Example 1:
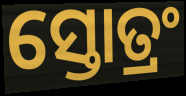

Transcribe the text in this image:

ସ୍ତୋତ୍ରଂ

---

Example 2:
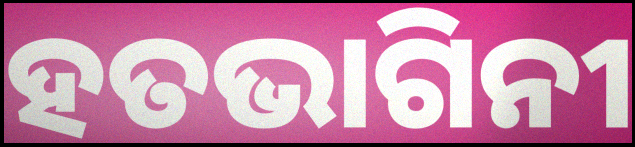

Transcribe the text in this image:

ହତଭାଗିନୀ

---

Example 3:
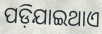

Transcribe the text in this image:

ପଡ଼ିଯାଇଥାଏ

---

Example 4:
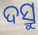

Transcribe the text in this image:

ଦସ୍ରୁ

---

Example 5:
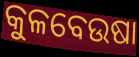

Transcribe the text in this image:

କୁଳବେଉଷା